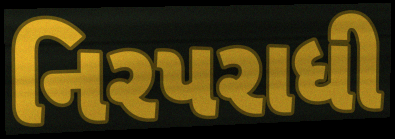
નિરપરાધી